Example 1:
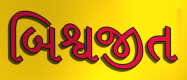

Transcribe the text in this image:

બિશ્વજીત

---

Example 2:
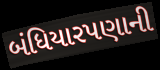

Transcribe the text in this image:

બંધિયારપણાની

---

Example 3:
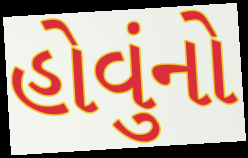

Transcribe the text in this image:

હોવુંનો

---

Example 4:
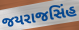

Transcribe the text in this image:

જયરાજસિંહ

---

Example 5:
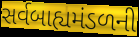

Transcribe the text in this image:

સર્વબાહ્યમંડળની